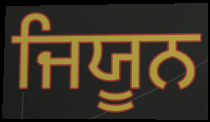
ਜਿਯੂਨ